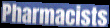
Pharmacists